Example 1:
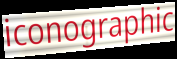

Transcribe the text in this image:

iconographic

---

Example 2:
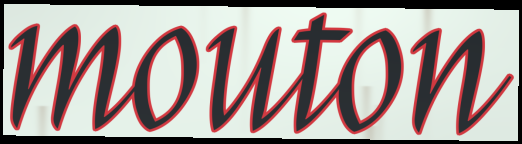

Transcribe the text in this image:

mouton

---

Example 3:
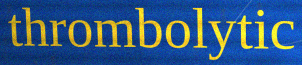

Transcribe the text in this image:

thrombolytic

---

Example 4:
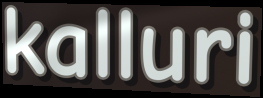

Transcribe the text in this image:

kalluri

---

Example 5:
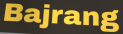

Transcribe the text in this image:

Bajrang